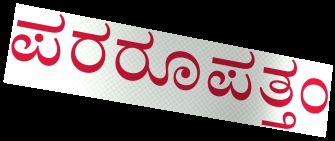
ಪರರೂಪತ್ತಂ